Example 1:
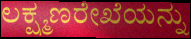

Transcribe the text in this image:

ಲಕ್ಷ್ಮಣರೇಖೆಯನ್ನು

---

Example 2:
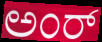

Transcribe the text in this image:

ಅಂರ್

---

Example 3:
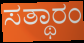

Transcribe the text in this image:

ಸತ್ಥಾರಂ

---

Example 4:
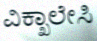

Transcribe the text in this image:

ವಿಕ್ಖಾಲೇಸಿ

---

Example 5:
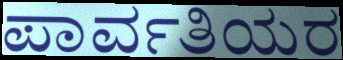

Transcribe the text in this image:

ಪಾರ್ವತಿಯರ